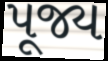
પૂજ્ય